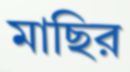
মাছির